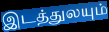
இடத்துலயும்